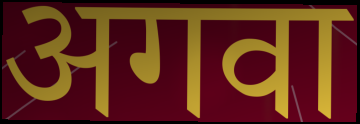
अगवा